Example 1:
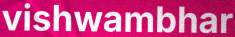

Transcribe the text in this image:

vishwambhar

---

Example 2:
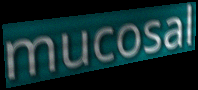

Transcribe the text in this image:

mucosal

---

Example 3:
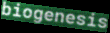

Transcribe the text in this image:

biogenesis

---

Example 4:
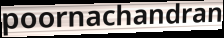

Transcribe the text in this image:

poornachandran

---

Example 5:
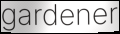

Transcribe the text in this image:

gardener